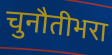
चुनौतीभरा